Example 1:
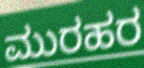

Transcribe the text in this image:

ಮುರಹರ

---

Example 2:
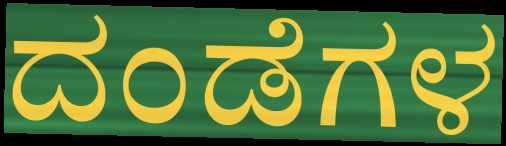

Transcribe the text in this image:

ದಂಡೆಗಳ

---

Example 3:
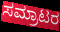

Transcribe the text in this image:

ಸಮ್ರಾಟರ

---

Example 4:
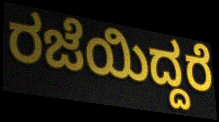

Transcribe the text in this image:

ರಜೆಯಿದ್ದರೆ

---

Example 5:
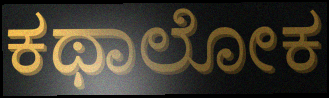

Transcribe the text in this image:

ಕಥಾಲೋಕ